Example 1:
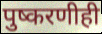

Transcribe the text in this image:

पुष्करणीही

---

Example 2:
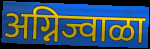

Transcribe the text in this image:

अग्निज्वाळा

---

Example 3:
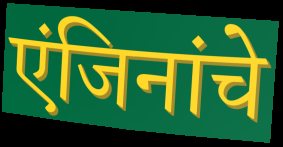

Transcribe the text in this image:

एंजिनांचे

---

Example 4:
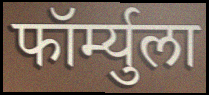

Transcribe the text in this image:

फॉर्म्युला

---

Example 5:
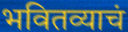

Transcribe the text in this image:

भवितव्याचं